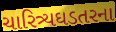
ચારિત્ર્યઘડતરના